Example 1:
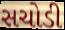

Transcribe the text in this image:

સચોડી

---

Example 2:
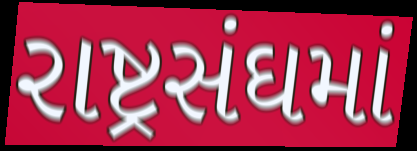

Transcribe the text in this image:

રાષ્ટ્રસંઘમાં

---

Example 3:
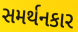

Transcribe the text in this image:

સમર્થનકાર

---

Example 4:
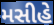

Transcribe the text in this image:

મસીહે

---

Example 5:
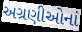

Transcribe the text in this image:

અગ્રણીઓનાં